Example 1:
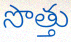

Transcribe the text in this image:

సొత్తు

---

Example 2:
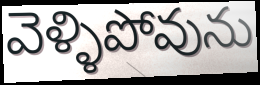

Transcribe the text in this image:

వెళ్ళిపోవును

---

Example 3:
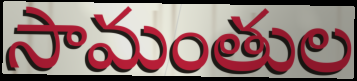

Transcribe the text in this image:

సామంతుల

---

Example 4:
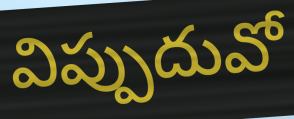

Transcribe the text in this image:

విప్పుదువో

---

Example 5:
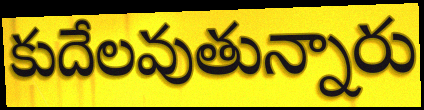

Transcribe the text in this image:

కుదేలవుతున్నారు